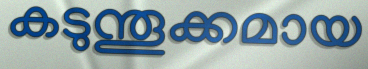
കടുന്തൂക്കമായ